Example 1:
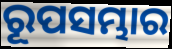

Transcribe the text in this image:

ରୂପସମ୍ଭାର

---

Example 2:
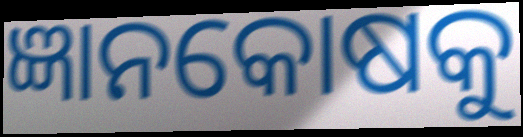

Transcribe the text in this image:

ଜ୍ଞାନକୋଷକୁ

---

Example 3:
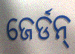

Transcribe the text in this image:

ଜେର୍ଡନ୍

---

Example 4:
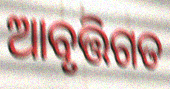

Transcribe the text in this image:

ଆବୃତ୍ତିଗତ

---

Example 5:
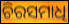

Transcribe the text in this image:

ଚିରସମାଧି